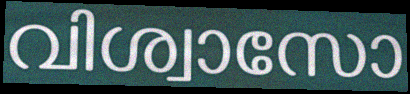
വിശ്വാസോ